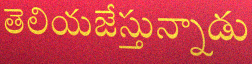
తెలియజేస్తున్నాడు